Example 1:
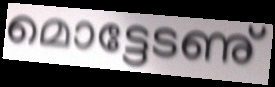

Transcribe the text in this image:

മൊട്ടേടണു്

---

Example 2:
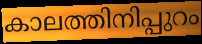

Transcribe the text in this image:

കാലത്തിനിപ്പുറം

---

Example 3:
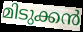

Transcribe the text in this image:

മിടുക്കൻ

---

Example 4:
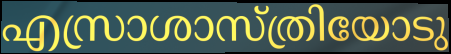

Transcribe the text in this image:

എസ്രാശാസ്ത്രിയോടു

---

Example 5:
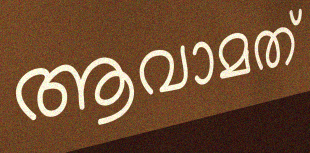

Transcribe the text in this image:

ആവാമത്